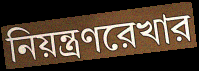
নিয়ন্ত্রণরেখার